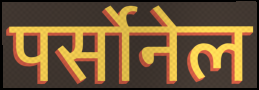
पर्सोनेल